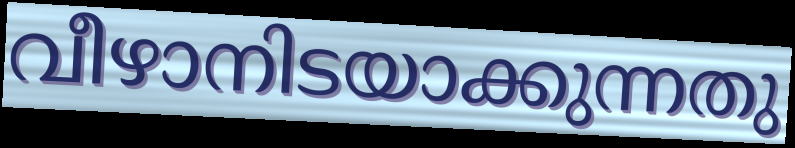
വീഴാനിടയാക്കുന്നതു